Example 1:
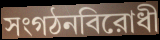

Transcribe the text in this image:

সংগঠনবিরোধী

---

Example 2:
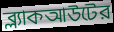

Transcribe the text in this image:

ব্ল্যাকআউটের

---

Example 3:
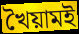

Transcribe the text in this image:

খৈয়ামই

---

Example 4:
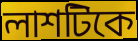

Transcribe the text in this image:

লাশটিকে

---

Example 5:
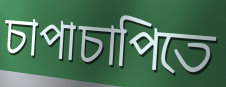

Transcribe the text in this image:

চাপাচাপিতে